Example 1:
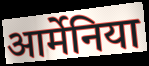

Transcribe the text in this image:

आर्मेनिया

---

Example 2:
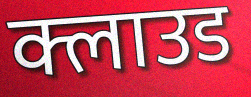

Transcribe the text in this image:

क्लाउड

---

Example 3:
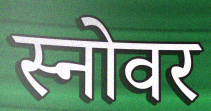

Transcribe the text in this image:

स्नोवर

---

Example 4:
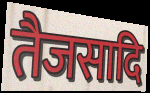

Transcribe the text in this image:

तैजसादि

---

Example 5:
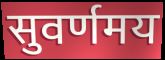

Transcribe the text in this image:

सुवर्णमय